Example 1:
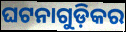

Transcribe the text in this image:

ଘଟନାଗୁଡ଼ିକର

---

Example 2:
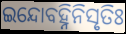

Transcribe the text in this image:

ଇନ୍ଦୋବହ୍ନିନିସୃତିଃ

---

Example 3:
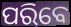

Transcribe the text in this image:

ପରିବେ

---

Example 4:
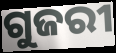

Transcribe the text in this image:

ଗୁଜରୀ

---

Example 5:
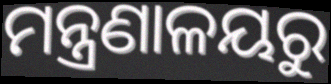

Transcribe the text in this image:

ମନ୍ତ୍ରଣାଳୟରୁ